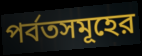
পর্বতসমূহের